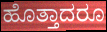
ಹೊತ್ತಾದರೂ